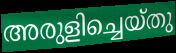
അരുളിച്ചെയ്തു